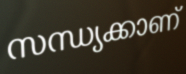
സന്ധ്യക്കാണ്